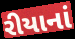
રીયાનાં